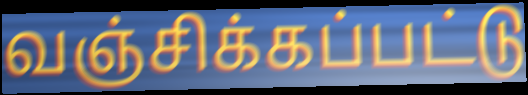
வஞ்சிக்கப்பட்டு